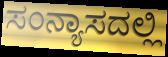
ಸಂನ್ಯಾಸದಲ್ಲಿ